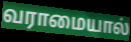
வராமையால்